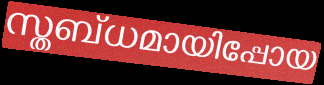
സ്തബ്ധമായിപ്പോയ